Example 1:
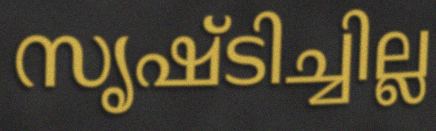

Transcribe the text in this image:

സൃഷ്ടിച്ചില്ല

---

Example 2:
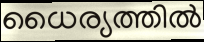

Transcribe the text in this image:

ധൈര്യത്തിൽ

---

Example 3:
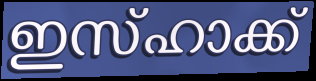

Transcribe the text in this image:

ഇസ്ഹാക്ക്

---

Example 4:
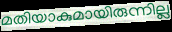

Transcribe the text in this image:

മതിയാകുമായിരുന്നില്ല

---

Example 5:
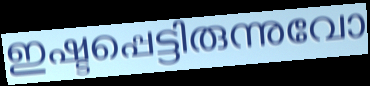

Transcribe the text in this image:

ഇഷ്ടപ്പെട്ടിരുന്നുവോ